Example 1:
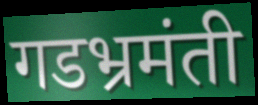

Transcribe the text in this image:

गडभ्रमंती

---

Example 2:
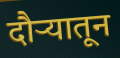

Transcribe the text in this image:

दौर्‍यातून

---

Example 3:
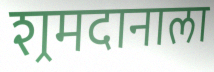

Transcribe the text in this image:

श्रमदानाला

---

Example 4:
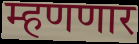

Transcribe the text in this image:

म्हणणार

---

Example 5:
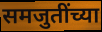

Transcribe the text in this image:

समजुतींच्या